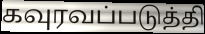
கவுரவப்படுத்தி